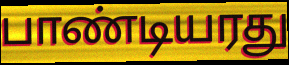
பாண்டியரது